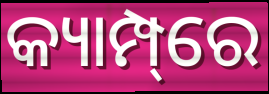
କ୍ୟାମ୍ପ୍‌ରେ